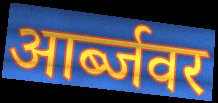
आर्ब्जवर